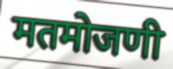
मतमोजणी